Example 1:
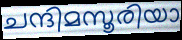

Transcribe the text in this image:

ചന്ദിമസൂരിയാ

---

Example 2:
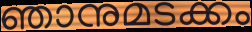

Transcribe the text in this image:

ഞാനുമടക്കം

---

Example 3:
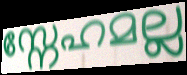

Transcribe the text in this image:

സ്നേഹമല്ല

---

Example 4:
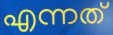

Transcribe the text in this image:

എന്നത്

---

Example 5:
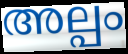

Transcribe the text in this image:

അല്പം